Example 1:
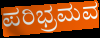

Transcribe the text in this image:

ಪರಿಭ್ರಮವ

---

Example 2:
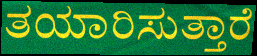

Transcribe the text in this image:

ತಯಾರಿಸುತ್ತಾರೆ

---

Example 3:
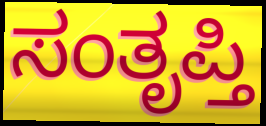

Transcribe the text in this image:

ಸಂತೃಪ್ತಿ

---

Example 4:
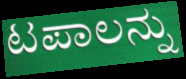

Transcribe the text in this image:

ಟಪಾಲನ್ನು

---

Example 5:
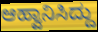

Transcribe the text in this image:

ಆಹ್ವಾನಿಸಿದ್ದು